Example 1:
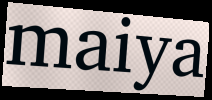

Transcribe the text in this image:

maiya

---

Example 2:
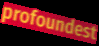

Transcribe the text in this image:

profoundest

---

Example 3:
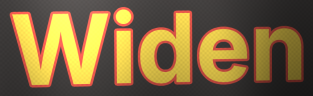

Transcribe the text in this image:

Widen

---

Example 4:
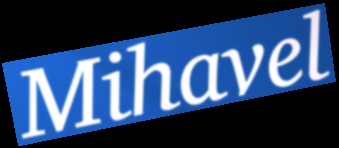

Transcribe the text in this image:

Mihavel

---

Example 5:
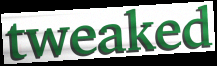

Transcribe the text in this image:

tweaked